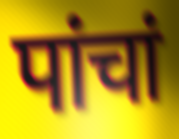
पांचां